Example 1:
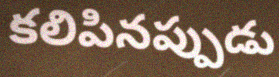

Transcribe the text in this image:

కలిపినప్పుడు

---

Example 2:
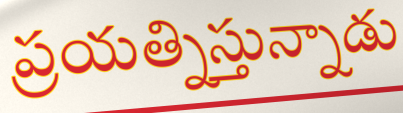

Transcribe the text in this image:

ప్రయత్నిస్తున్నాడు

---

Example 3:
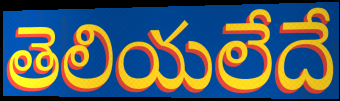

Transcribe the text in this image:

తెలియలేదే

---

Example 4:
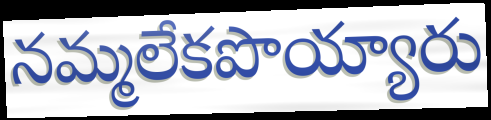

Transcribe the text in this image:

నమ్మలేకపొయ్యారు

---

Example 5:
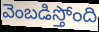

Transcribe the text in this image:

వెంబడిస్తోంది